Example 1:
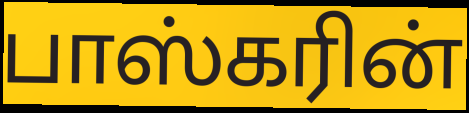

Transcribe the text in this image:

பாஸ்கரின்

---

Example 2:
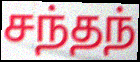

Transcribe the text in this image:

சந்தந்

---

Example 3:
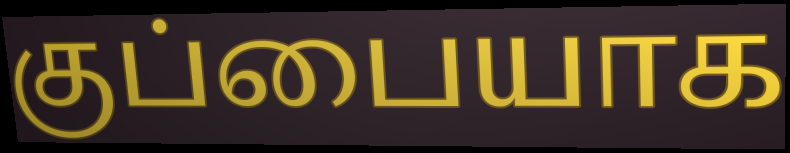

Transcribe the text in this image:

குப்பையாக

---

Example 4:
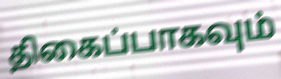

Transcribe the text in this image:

திகைப்பாகவும்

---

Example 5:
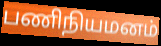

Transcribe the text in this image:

பணிநியமனம்